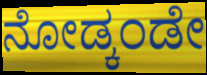
ನೋಡ್ಕಂಡೇ